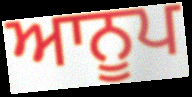
ਆਨੂਪ